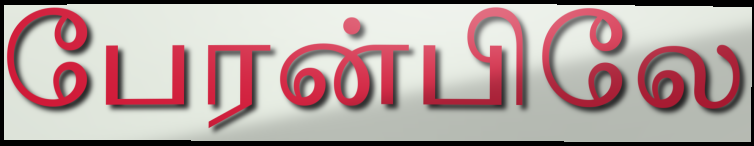
பேரன்பிலே